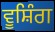
ਵੂਸ਼ਿੰਗ